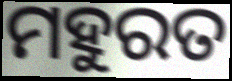
ମହୁରତ